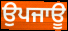
ਉਪਜਾਊ